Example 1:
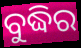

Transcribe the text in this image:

ବୁଦ୍ଧିର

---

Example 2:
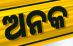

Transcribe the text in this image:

ଅନକ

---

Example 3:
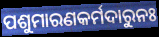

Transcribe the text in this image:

ପଶୁମାରଣକର୍ମଦାରୁନଃ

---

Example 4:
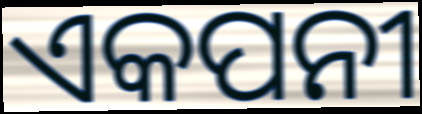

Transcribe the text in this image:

ଏକପନୀ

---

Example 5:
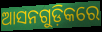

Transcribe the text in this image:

ଆସନଗୁଡ଼ିକରେ